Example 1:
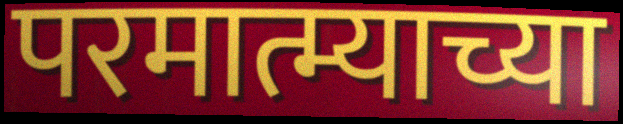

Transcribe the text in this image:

परमात्म्याच्या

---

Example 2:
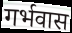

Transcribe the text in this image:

गर्भवास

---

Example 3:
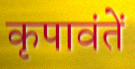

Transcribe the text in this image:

कृपावंतें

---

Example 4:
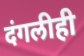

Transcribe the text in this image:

दंगलीही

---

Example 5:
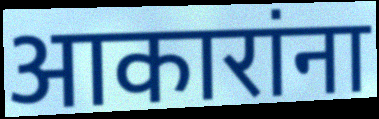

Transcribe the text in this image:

आकारांना